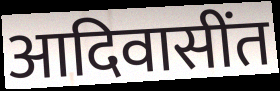
आदिवासींत